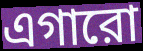
এগারো